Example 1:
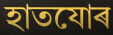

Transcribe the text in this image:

হাতযোৰ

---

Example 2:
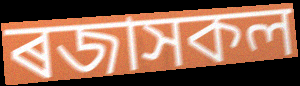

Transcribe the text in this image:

ৰজাসকল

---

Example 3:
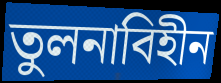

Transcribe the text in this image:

তুলনাবিহীন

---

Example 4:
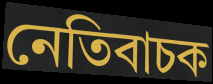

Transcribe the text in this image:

নেতিবাচক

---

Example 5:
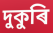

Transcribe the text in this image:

দুকুৰি